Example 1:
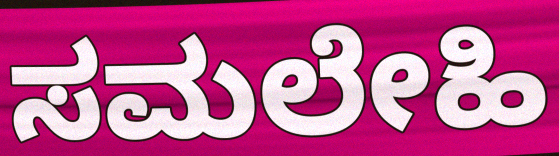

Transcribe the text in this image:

ಸಮಲೇಹಿ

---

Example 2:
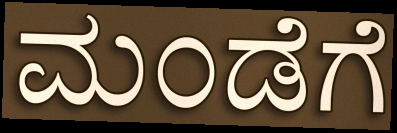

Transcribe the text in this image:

ಮಂಡೆಗೆ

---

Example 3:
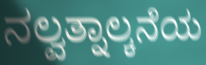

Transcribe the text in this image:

ನಲ್ವತ್ನಾಲ್ಕನೆಯ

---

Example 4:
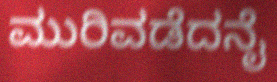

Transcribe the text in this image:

ಮುರಿವಡೆದನೈ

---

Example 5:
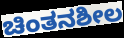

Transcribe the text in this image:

ಚಿಂತನಶೀಲ